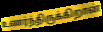
உணர்ந்திருக்கிறான்